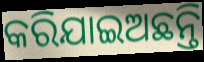
କରିଯାଇଅଛନ୍ତି